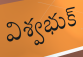
విశ్వభుక్